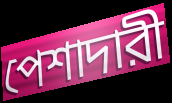
পেশাদারী